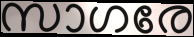
സാഗരേ